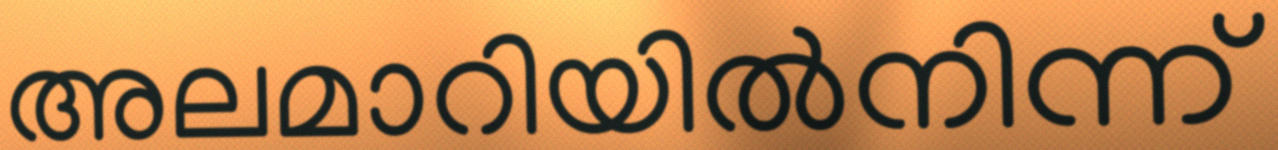
അലമാറിയിൽനിന്ന്